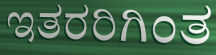
ಇತರರಿಗಿಂತ